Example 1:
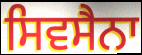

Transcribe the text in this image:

ਸਿਵਸੈਨਾ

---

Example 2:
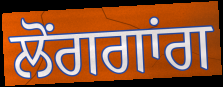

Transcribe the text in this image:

ਲੋਂਗਗਾਂਗ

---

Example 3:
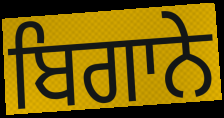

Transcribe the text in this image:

ਬਿਗਾਨੇ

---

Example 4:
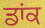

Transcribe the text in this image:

ਡਾਂਕ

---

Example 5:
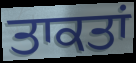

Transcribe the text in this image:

ਤਾਕਤਾਂ